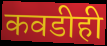
कवडीही